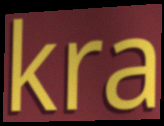
kra